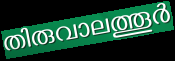
തിരുവാലത്തൂർ